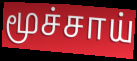
மூச்சாய்